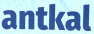
antkal